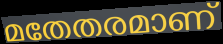
മതേതരമാണ്